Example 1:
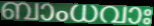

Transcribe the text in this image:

ബാംധവാഃ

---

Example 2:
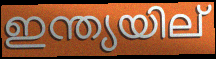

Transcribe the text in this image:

ഇന്ത്യയില്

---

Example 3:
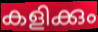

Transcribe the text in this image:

കളിക്കും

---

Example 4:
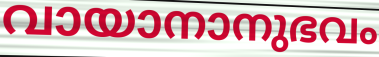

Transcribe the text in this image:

വായാനാനുഭവം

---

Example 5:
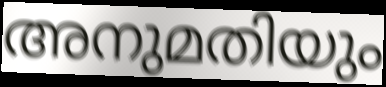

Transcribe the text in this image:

അനുമതിയും